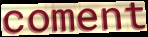
coment